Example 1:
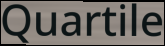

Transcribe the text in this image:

Quartile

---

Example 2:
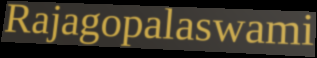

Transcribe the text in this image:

Rajagopalaswami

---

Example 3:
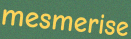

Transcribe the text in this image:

mesmerise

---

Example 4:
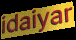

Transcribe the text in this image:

idaiyar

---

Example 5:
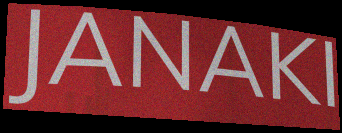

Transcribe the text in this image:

JANAKI